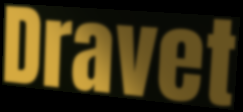
Dravet